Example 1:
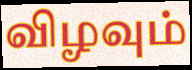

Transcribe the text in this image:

விழவும்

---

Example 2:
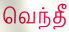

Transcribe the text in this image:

வெந்தீ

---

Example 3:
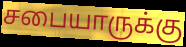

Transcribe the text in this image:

சபையாருக்கு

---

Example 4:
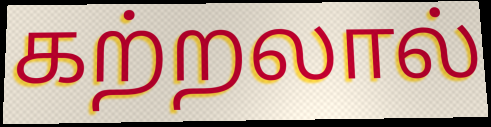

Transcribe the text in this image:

கற்றலால்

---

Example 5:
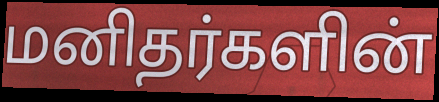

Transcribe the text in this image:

மனிதர்களின்